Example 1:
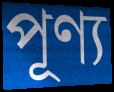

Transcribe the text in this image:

পূণ্য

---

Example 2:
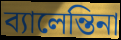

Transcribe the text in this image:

ব্যালেন্তিনা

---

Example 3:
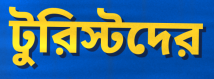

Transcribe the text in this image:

টুরিস্টদের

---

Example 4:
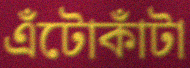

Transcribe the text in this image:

এঁটোকাঁটা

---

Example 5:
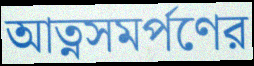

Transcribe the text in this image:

আত্নসমর্পণের